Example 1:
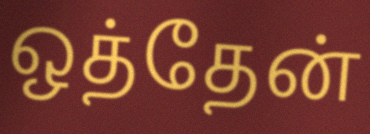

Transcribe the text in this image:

ஒத்தேன்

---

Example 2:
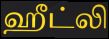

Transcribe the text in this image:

ஹீட்லி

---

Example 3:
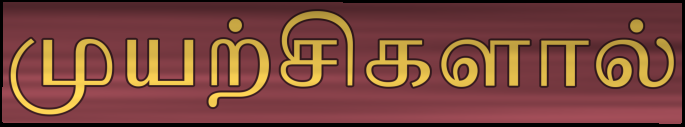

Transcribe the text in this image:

முயற்சிகளால்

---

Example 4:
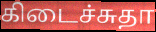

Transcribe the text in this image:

கிடைச்சுதா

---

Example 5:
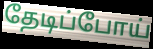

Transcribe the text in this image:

தேடிப்போய்